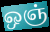
ஒஞ்